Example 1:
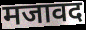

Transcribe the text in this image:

मजावद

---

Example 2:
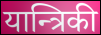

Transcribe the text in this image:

यान्त्रिकी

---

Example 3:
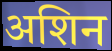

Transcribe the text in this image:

अशिन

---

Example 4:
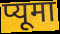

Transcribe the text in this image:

प्यूमा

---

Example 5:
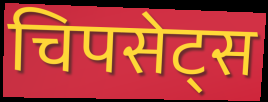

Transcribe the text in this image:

चिपसेट्स